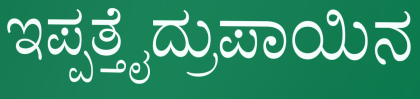
ಇಪ್ಪತ್ತೈದ್ರುಪಾಯಿನ